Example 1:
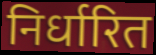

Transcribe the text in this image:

निर्धारित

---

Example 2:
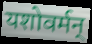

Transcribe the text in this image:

यशोवर्मन्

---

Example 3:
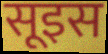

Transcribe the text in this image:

सूइस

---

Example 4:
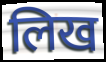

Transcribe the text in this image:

लिख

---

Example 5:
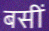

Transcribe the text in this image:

बसीं